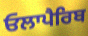
ਓਲਾਪੈਰਿਬ